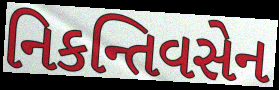
નિકન્તિવસેન